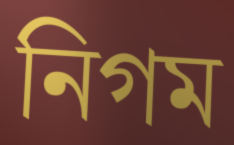
নিগম